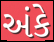
અંકે